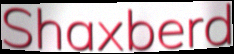
Shaxberd